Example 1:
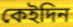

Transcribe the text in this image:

কেইদিন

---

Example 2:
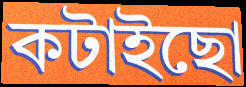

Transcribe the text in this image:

কটাইছো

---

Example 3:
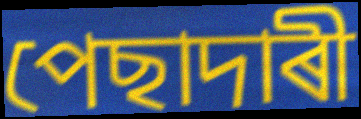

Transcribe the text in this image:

পেছাদাৰী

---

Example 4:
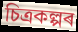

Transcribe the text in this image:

চিত্ৰকল্পৰ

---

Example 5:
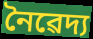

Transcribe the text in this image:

নৈৱেদ্য